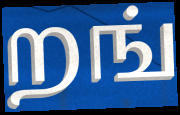
றங்